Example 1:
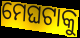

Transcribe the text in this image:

ମେଘଟାକୁ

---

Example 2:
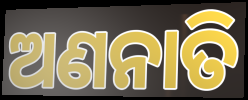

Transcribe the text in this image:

ଅଣନାତି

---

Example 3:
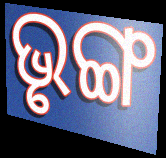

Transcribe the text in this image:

ଭୃଙ୍ଗ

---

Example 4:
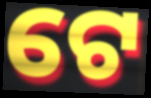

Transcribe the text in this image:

ଟେ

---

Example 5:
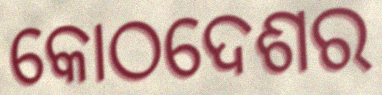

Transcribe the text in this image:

କୋଠଦେଶର